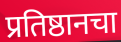
प्रतिष्ठानचा